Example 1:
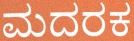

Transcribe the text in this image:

ಮದರಕ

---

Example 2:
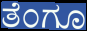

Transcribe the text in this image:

ತೆಂಗೂ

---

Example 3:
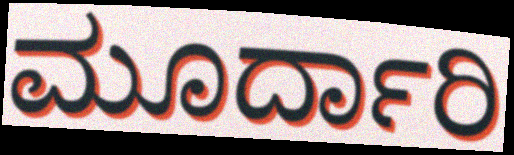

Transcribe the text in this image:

ಮೂರ್ದಾರಿ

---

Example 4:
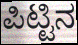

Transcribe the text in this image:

ಪಿಟ್ಟಿನ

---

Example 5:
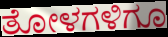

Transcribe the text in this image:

ತೋಳಗಳಿಗೂ